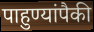
पाहुण्यांपैकी